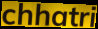
chhatri